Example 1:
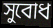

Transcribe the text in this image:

সুবোধ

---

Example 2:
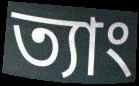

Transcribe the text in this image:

ত্যাং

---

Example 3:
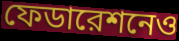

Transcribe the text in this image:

ফেডারেশনেও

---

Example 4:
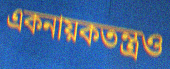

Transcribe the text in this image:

একনায়কতন্ত্রও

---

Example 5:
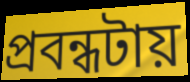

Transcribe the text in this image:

প্রবন্ধটায়